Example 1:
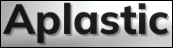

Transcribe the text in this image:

Aplastic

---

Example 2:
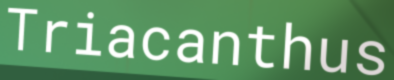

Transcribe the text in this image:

Triacanthus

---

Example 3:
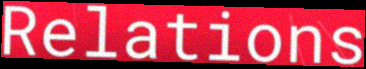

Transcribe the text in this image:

Relations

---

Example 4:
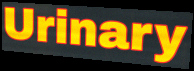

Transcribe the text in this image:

Urinary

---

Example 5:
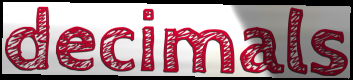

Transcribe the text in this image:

decimals